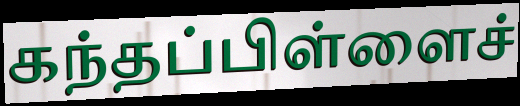
கந்தப்பிள்ளைச்